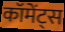
कॉमेंट्स